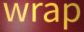
wrap